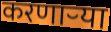
करणाऱ्या